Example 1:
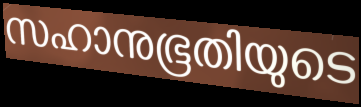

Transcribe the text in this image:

സഹാനുഭൂതിയുടെ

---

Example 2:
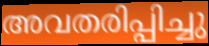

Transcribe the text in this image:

അവതരിപ്പിച്ചു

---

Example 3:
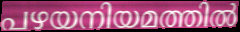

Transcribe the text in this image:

പഴയനിയമത്തിൽ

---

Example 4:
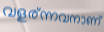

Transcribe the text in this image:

വളര്ന്നവനാണ്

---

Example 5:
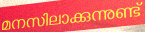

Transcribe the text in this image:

മനസിലാക്കുന്നുണ്ട്